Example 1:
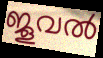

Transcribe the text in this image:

ജൂവൽ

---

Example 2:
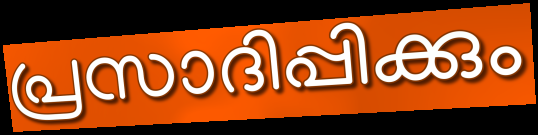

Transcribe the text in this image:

പ്രസാദിപ്പിക്കും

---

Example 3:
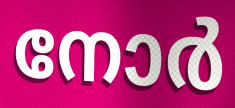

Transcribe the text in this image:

നോർ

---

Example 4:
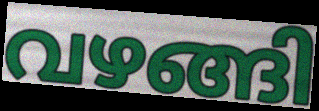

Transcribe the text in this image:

വഴങ്ങി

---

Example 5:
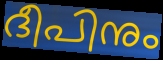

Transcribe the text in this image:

ദീപിനും